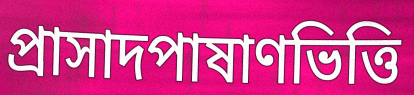
প্রাসাদপাষাণভিত্তি